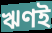
ঋণই